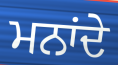
ਮਨਾਂਦੇ